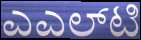
ಎಎಲ್‌ಟಿ